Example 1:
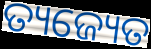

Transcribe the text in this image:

ତ୍ୟଜ୍ୟେତ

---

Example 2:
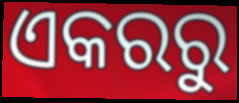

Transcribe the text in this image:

ଏକରରୁ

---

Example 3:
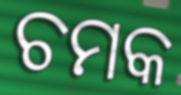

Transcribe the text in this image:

ଚମକ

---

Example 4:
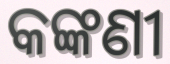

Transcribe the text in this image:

କଙ୍କଣୀ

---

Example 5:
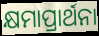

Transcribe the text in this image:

କ୍ଷମାପ୍ରାର୍ଥନା